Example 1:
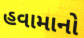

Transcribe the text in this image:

હવામાનો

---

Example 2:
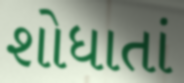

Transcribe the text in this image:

શોધાતાં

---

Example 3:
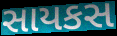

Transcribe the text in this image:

સાયકસ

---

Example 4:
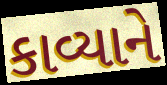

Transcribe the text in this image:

કાવ્યાને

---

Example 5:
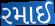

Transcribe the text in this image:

રમાઈ